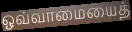
ஒவ்வாமையைத்